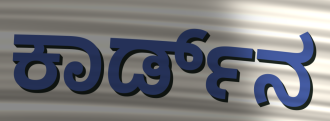
ಕಾರ್ಡ್‌ನ